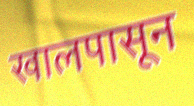
खालपासून